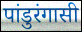
पांडुरंगासी